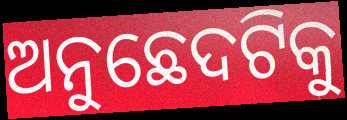
ଅନୁଛେଦଟିକୁ